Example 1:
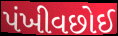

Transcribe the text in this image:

પંખીવછોઈ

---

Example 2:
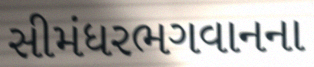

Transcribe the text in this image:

સીમંધરભગવાનના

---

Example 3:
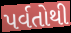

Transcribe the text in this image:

પર્વતોથી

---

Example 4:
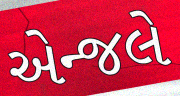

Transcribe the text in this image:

એન્જલે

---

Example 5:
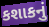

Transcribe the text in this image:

કશાકનું